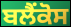
ਬਲੈਂਕੋਸ